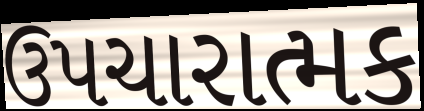
ઉપચારાત્મક